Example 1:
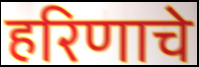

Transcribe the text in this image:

हरिणाचे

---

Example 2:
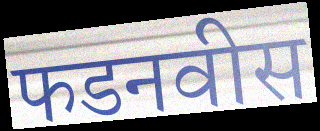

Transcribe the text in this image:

फडनवीस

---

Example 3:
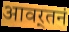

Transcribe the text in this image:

आवर्तनं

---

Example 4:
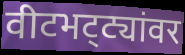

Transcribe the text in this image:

वीटभट्ट्यांवर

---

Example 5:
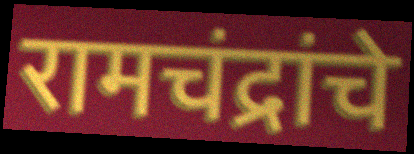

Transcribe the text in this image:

रामचंद्रांचे